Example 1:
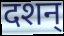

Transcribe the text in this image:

दशन्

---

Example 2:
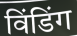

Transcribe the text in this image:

विंडिंग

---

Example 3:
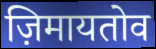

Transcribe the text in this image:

ज़िमायतोव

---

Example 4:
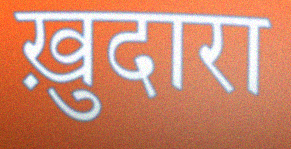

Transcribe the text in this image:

ख़ुदारा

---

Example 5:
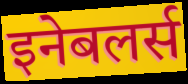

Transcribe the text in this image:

इनेबलर्स